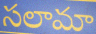
సలామా